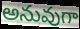
అనువుగా